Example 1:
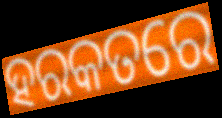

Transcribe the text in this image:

ହରକତରେ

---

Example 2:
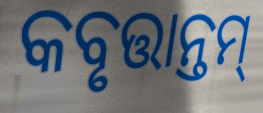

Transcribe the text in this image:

କବୃତ୍ତାନ୍ତମ୍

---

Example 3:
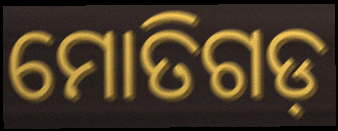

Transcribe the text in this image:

ମୋତିଗଡ଼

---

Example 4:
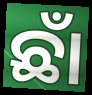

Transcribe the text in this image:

ଛାଁ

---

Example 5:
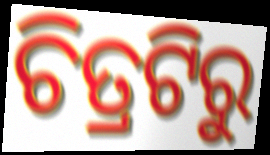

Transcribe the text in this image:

ଚିତ୍ରଟିରୁ